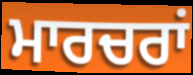
ਮਾਰਚਰਾਂ